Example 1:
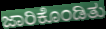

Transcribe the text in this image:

ಜಾರಿಕೊಂಡಿತು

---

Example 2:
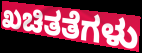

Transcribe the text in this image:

ಖಚಿತತೆಗಳು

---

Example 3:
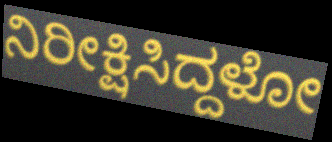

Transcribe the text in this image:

ನಿರೀಕ್ಷಿಸಿದ್ದಳೋ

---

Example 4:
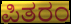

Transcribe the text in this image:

ಪಿತರಂ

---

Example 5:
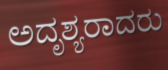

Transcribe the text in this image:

ಅದೃಶ್ಯರಾದರು